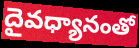
దైవధ్యానంతో